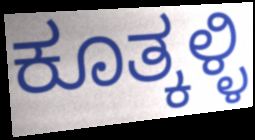
ಕೂತ್ಕಳ್ಳಿ